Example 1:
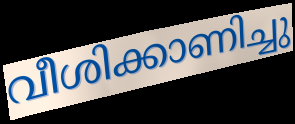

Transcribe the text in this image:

വീശിക്കാണിച്ചു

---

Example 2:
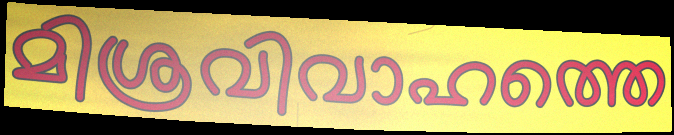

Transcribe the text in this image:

മിശ്രവിവാഹത്തെ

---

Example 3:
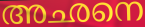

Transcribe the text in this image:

അഛനെ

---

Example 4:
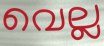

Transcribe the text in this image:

വെല്ല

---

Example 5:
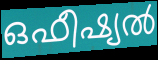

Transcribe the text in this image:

ഒഫീഷ്യൽ